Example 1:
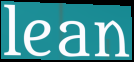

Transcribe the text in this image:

lean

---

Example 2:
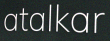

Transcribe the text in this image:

atalkar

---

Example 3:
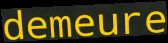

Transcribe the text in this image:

demeure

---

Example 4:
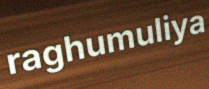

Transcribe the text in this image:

raghumuliya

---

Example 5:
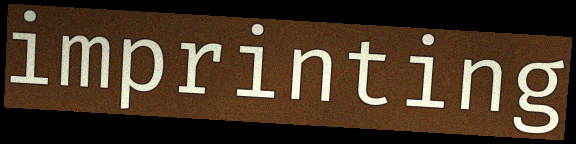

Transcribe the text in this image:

imprinting